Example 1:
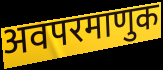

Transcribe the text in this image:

अवपरमाणुक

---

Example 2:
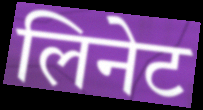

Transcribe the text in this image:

लिनेट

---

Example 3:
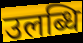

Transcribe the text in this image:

उलब्धि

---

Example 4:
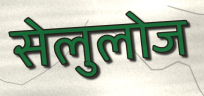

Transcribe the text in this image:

सेलुलोज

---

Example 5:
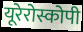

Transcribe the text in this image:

यूरेरोस्कोपी